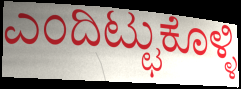
ಎಂದಿಟ್ಟುಕೊಳ್ಳಿ